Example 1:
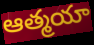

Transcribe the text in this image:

ఆత్మయా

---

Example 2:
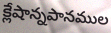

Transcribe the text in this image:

క్లేషాన్నపానముల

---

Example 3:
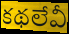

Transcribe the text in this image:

కథలేవీ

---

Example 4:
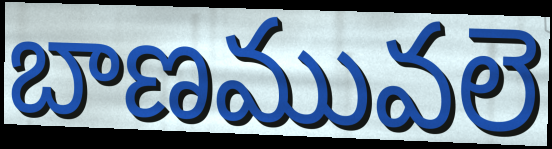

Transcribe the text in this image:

బాణమువలె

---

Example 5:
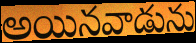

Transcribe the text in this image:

అయినవాడును